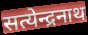
सत्येन्द्रनाथ